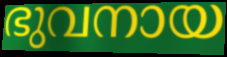
ഭുവനായ